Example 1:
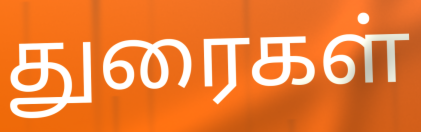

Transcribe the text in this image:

துரைகள்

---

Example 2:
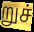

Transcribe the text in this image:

றுச்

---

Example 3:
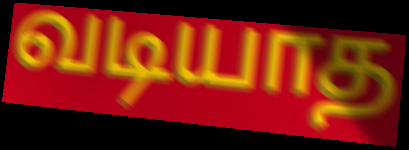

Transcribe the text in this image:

வடியாத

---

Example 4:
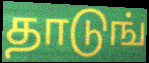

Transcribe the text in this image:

தாடுங்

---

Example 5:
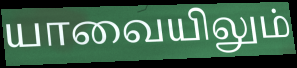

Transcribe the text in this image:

யாவையிலும்